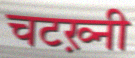
चटख़्नी